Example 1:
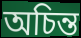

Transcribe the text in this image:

অচিন্ত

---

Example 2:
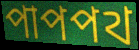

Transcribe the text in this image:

পাপপথ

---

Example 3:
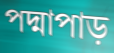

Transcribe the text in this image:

পদ্মাপাড়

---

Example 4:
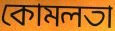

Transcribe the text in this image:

কোমলতা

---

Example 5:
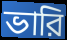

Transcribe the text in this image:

ভারি